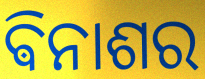
ଵିନାଶର